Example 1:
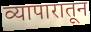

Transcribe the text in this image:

व्यापारातून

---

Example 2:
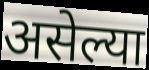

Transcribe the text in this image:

असेल्या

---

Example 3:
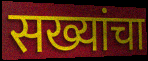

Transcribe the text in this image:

सख्यांचा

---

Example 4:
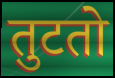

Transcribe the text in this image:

तुटतो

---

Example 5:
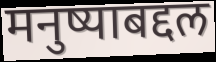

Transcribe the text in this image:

मनुष्याबद्दल